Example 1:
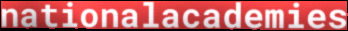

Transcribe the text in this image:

nationalacademies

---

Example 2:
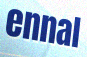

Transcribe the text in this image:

ennal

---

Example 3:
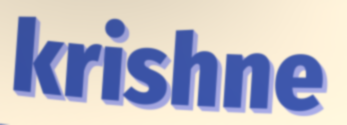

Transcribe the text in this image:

krishne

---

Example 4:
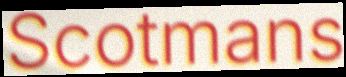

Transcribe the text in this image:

Scotmans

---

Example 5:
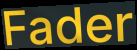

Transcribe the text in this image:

Fader